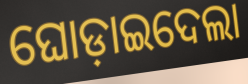
ଘୋଡ଼ାଇଦେଲା